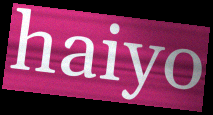
haiyo